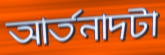
আর্তনাদটা